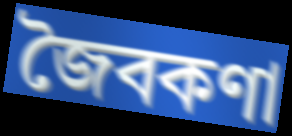
জৈবকণা